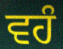
ਵਹੰ